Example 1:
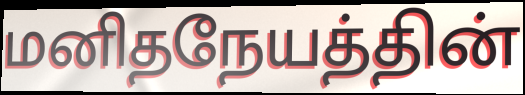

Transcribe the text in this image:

மனிதநேயத்தின்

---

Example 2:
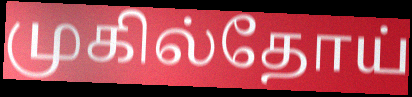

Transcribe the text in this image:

முகில்தோய்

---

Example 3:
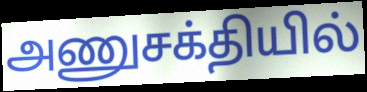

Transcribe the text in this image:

அணுசக்தியில்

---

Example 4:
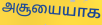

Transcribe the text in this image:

அசூயையாக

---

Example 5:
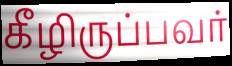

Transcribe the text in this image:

கீழிருப்பவர்